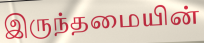
இருந்தமையின்